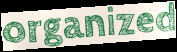
organized